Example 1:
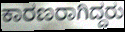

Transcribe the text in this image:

ಕಾರಣರಾಗಿದ್ದರು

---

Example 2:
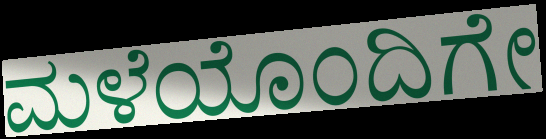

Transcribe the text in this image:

ಮಳೆಯೊಂದಿಗೇ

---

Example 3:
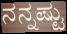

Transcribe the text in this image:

ನನ್ನಷ್ಟು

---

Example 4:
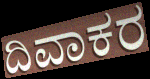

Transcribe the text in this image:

ದಿವಾಕರ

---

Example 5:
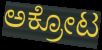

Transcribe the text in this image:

ಅಕ್ರೋಟ